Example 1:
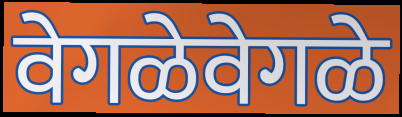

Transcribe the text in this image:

वेगळेवेगळे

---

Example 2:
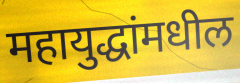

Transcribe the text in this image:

महायुद्धांमधील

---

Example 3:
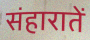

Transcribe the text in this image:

संहारातें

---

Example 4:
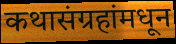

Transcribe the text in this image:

कथासंग्रहांमधून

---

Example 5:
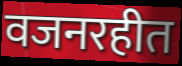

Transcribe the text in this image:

वजनरहीत